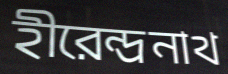
হীরেন্দ্রনাথ